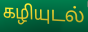
கழியுடல்